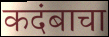
कदंबाचा